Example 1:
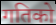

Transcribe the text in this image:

गतिको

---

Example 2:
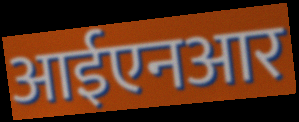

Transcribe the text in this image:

आईएनआर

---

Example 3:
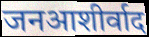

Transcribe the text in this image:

जनआशीर्वाद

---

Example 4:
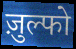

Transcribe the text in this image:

ज़ुल्फो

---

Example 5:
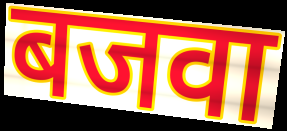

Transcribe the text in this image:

बजवा